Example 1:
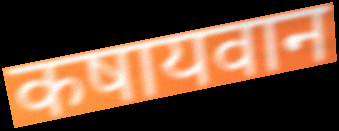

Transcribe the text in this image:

कषायवान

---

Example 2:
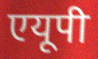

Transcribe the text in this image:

एयूपी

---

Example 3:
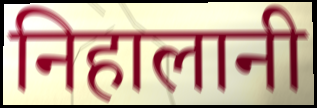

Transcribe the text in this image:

निहालानी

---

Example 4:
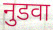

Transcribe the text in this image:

नुडवा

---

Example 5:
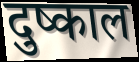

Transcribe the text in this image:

दुष्काल